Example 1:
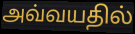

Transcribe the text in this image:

அவ்வயதில்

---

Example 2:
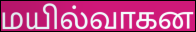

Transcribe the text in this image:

மயில்வாகன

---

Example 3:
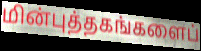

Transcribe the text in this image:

மின்புத்தகங்களைப்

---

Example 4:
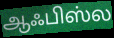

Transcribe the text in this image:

ஆஃபிஸ்ல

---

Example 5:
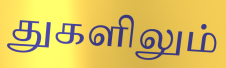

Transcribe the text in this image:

துகளிலும்